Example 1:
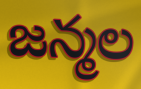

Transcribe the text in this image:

జన్మల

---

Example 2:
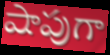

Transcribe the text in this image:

షాపుగా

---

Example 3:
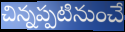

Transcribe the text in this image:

చిన్నప్పటినుంచే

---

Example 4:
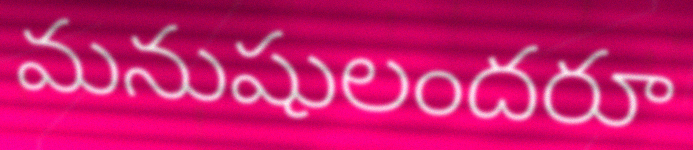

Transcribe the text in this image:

మనుషులందరూ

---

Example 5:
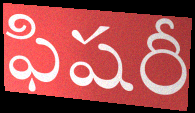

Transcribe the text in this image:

ఫిషరీ